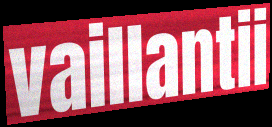
vaillantii